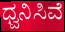
ಧ್ವನಿಸಿವೆ